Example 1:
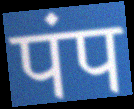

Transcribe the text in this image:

पंप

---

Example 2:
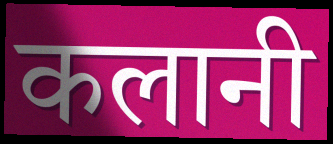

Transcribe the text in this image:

कलानी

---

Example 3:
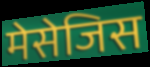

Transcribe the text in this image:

मेसेजिस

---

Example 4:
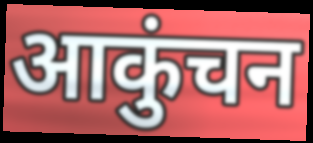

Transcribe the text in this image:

आकुंचन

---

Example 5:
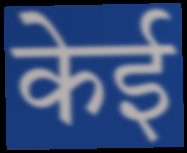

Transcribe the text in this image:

केई